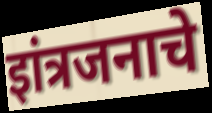
इांत्रजनाचे